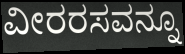
ವೀರರಸವನ್ನೂ